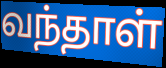
வந்தாள்